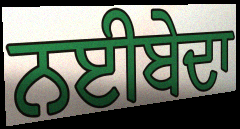
ਨਈਬੇਦਾ